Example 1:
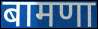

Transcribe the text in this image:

बामणा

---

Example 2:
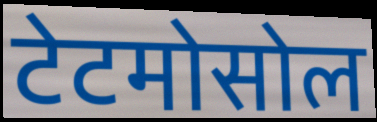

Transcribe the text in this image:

टेटमोसोल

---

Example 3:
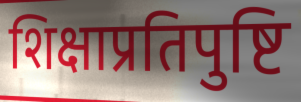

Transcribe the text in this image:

शिक्षाप्रतिपुष्टि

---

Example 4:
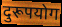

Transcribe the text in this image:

दुरूपयोग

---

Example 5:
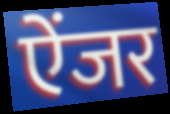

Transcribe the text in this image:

ऐंजर